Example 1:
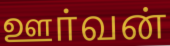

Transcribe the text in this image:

ஊர்வன்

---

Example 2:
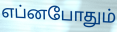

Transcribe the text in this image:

எப்னபோதும்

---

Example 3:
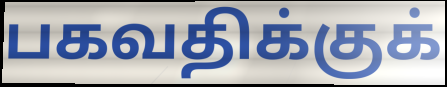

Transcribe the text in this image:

பகவதிக்குக்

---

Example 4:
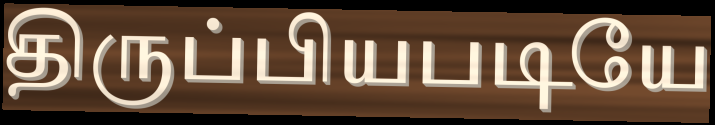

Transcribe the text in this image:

திருப்பியபடியே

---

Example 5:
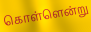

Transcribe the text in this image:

கொள்ளென்று